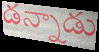
డన్నాడు